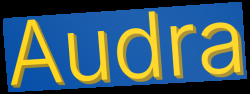
Audra